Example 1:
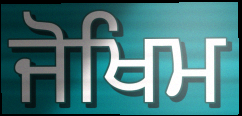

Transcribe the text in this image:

ਜੋਖਿਮ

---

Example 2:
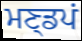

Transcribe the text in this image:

ਮਣ੍ਡਪਂ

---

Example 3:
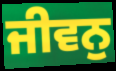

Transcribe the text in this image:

ਜੀਵਨੁ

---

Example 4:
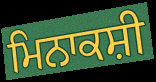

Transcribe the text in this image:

ਮਿਨਾਕਸ਼ੀ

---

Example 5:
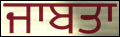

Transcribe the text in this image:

ਜਾਬਤਾ